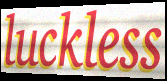
luckless